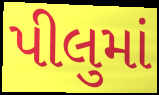
પીલુમાં